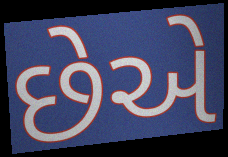
છેએ